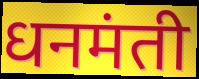
धनमंती